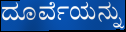
ದೂರ್ವೆಯನ್ನು